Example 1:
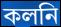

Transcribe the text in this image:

কলনি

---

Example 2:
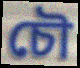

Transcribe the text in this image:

চৌ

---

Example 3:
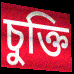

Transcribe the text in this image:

চুক্তি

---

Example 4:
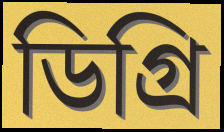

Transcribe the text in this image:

ডিগ্ৰি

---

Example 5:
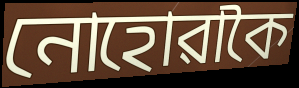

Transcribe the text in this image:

নোহোৱাকৈ